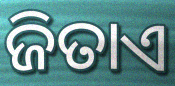
ଜିତାଏ